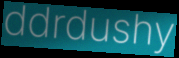
ddrdushy